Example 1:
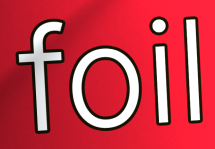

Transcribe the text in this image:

foil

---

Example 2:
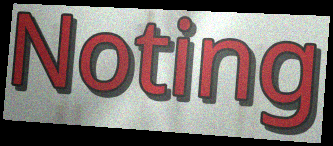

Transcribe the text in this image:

Noting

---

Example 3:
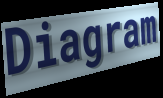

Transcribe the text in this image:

Diagram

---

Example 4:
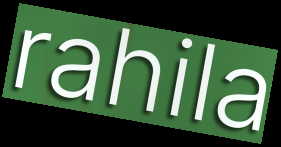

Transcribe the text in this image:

rahila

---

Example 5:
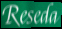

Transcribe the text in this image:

Reseda